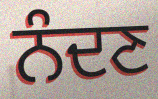
ਨੰਦਣ